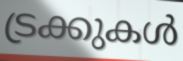
ട്രക്കുകൾ